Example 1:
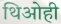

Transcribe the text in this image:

थिओही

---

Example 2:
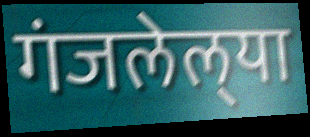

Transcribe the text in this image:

गंजलेल्या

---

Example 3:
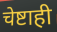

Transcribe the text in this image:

चेष्टाही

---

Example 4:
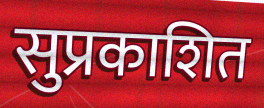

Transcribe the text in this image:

सुप्रकाशित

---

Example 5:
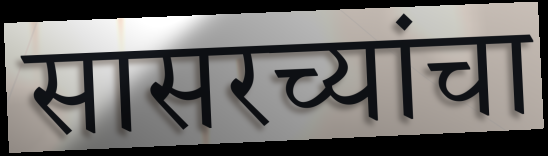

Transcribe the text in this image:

सासरच्यांचा